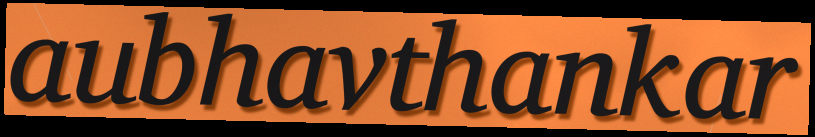
aubhavthankar